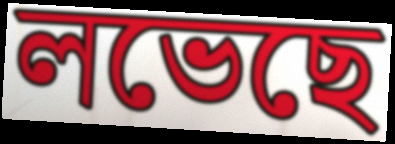
লভেছে